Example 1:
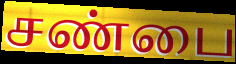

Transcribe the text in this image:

சண்பை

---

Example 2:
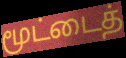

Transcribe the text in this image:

மூட்டைத்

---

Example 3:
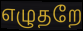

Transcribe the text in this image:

எழுதறே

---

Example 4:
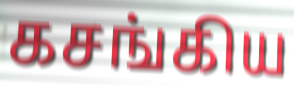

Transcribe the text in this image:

கசங்கிய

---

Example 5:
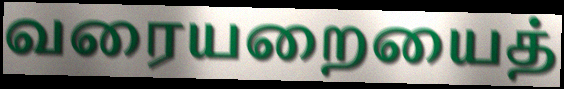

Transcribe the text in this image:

வரையறையைத்